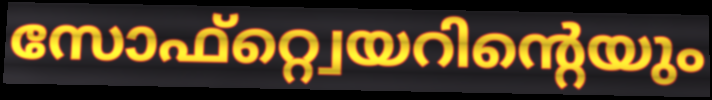
സോഫ്റ്റ്വെയറിന്റെയും